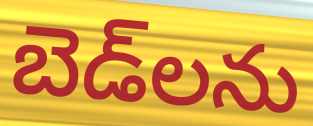
బెడ్‌లను